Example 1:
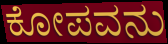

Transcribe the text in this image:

ಕೋಪವನು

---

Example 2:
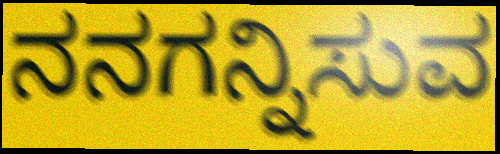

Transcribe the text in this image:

ನನಗನ್ನಿಸುವ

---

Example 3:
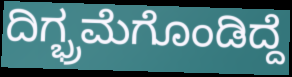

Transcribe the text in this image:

ದಿಗ್ಭ್ರಮೆಗೊಂಡಿದ್ದೆ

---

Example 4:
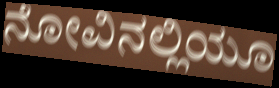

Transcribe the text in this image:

ನೋವಿನಲ್ಲಿಯೂ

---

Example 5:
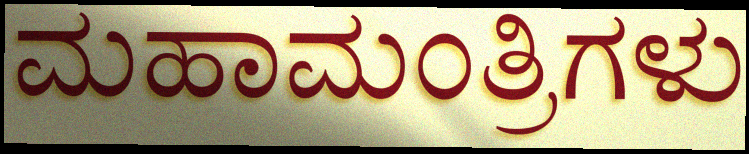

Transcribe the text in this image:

ಮಹಾಮಂತ್ರಿಗಳು